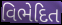
વિભેદિત